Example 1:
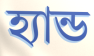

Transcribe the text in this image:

হ্যান্ড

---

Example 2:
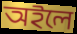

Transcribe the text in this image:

অইলে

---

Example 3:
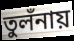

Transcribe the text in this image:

তুলঁনায়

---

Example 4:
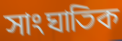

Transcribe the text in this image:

সাংঘাতিক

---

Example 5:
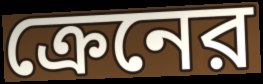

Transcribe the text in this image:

ক্রেনের